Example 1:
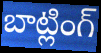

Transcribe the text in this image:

బాట్లింగ్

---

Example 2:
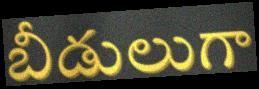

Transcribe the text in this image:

బీడులుగా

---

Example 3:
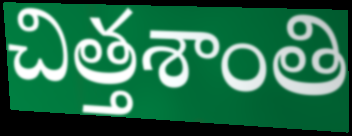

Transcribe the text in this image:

చిత్తశాంతి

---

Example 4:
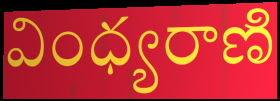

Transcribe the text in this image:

వింధ్యరాణి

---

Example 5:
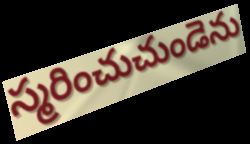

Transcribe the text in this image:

స్మరించుచుండెను